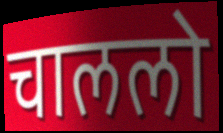
चाललो